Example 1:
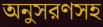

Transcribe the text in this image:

অনুসরণসহ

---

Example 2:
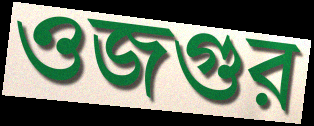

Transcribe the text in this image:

ওজগুর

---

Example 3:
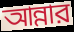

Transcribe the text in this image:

আন্নার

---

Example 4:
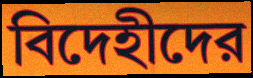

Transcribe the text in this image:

বিদেহীদের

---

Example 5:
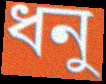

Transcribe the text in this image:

ধনু